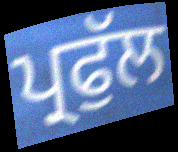
ਪ੍ਰਫੁੱਲ